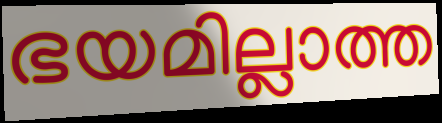
ഭയമില്ലാത്ത